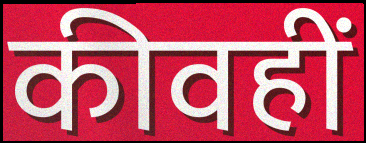
कीवहीं